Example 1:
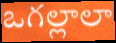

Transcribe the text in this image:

ఒగల్లాలా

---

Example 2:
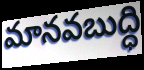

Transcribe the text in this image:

మానవబుద్ధి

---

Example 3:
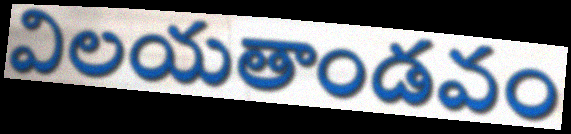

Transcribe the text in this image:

విలయతాండవం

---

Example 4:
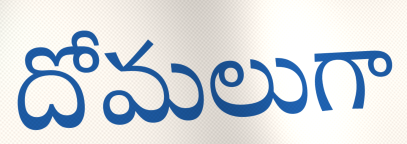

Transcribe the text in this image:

దోమలుగా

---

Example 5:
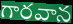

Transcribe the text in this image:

గారవాన